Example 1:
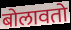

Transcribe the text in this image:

बोलावतो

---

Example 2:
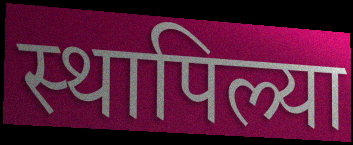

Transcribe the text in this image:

स्थापिल्या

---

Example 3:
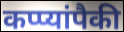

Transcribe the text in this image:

कप्प्यांपैकी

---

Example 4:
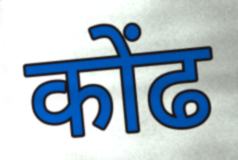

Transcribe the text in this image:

कोंढ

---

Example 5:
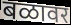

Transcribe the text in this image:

बळावर